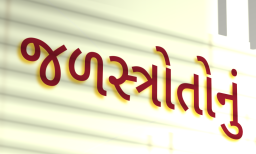
જળસ્ત્રોતોનું